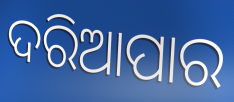
ଦରିଆପାର